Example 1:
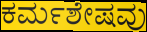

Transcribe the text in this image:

ಕರ್ಮಶೇಷವು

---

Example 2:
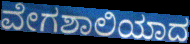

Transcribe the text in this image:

ವೇಗಶಾಲಿಯಾದ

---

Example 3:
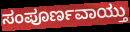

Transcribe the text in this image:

ಸಂಪೂರ್ಣವಾಯ್ತು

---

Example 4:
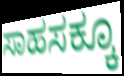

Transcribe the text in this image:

ಸಾಹಸಕ್ಕೂ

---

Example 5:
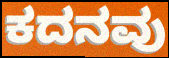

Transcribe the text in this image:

ಕದನವು